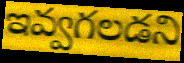
ఇవ్వగలడని